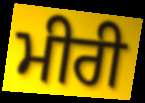
ਮੀਰੀ